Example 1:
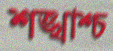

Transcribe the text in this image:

শঙ্খাশ্চ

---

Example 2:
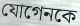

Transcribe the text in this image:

যোগেনকে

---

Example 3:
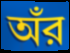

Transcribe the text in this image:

অঁর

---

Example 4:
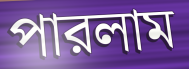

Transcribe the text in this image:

পারলাম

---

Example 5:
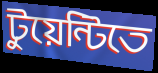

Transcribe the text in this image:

টুয়েন্টিতে